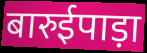
बारुईपाड़ा